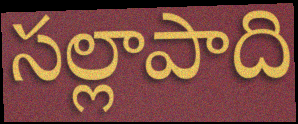
సల్లాపాది